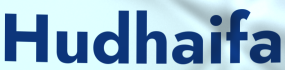
Hudhaifa